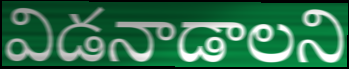
విడనాడాలని